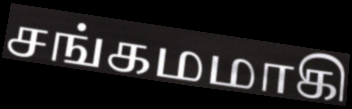
சங்கமமாகி